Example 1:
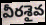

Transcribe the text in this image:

వీరశైవ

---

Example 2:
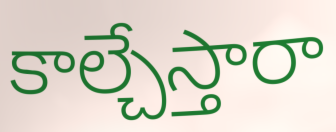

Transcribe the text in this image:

కాల్చేస్తారా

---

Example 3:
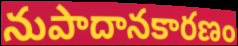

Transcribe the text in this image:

నుపాదానకారణం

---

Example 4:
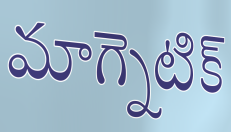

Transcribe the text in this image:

మాగ్నెటిక్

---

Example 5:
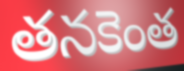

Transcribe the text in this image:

తనకెంత